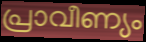
പ്രാവീണ്യം